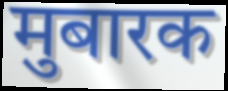
मुबारक